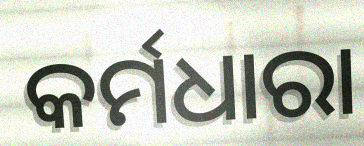
କର୍ମଧାରା